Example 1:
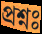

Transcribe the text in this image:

প্রশ্নঃ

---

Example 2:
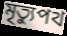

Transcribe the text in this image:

মৃত্যুপথ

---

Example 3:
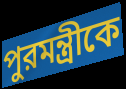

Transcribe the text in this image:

পুরমন্ত্রীকে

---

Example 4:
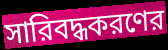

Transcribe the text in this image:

সারিবদ্ধকরণের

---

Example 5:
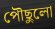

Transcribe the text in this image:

পৌছুলো